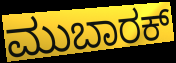
ಮುಬಾರಕ್